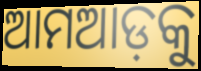
ଆମଆଡ଼କୁ